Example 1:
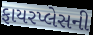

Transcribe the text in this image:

ફાયરપ્લેસની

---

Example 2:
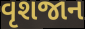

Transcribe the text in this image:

વૃશજાન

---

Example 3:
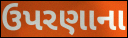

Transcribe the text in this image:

ઉપરણાના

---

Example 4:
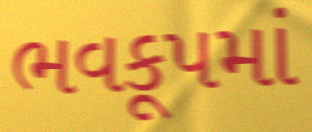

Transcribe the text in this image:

ભવકૂપમાં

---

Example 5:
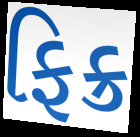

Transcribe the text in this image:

ફિક્ર